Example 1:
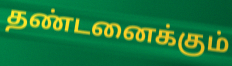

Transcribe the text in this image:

தண்டனைக்கும்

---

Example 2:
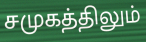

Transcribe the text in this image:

சமுகத்திலும்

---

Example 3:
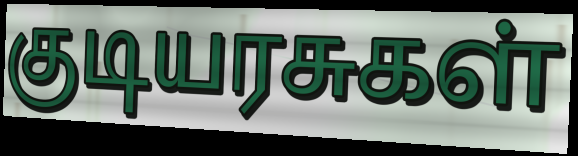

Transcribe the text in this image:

குடியரசுகள்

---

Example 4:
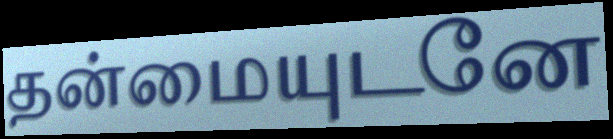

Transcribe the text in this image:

தன்மையுடனே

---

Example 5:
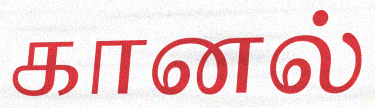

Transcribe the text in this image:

கானல்